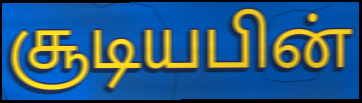
சூடியபின்